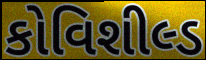
કોવિશીલ્ડ